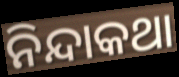
ନିନ୍ଦାକଥା